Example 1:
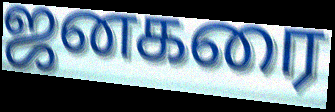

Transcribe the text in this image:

ஜனகரை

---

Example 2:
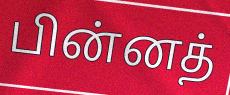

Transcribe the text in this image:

பின்னத்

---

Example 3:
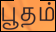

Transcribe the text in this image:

பூதம்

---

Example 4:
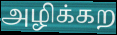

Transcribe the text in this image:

அழிக்கற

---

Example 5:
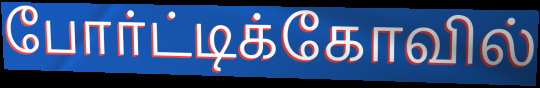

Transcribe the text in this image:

போர்ட்டிக்கோவில்